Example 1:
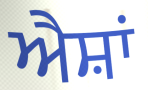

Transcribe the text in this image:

ਐਸ਼ਾਂ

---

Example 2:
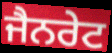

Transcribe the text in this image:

ਜੈਨਰੇਟ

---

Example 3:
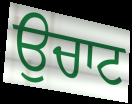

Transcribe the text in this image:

ਉਚਾਟ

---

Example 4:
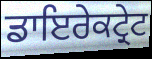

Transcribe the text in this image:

ਡਾਇਰੇਕਟ੍ਰੇਟ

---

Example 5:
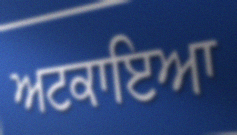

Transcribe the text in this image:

ਅਟਕਾਇਆ